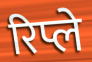
रिप्ले